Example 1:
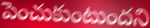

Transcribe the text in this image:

పెంచుకుంటుందని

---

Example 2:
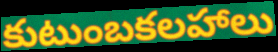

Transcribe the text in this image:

కుటుంబకలహాలు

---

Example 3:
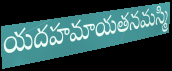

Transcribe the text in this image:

యదహమాయతనమస్మి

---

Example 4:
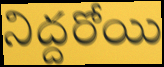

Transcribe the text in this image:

నిద్దరోయి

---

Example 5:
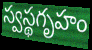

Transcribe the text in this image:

స్వస్థగృహం